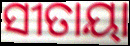
ସୀତାୟା